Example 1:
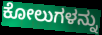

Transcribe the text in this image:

ಕೋಲುಗಳನ್ನು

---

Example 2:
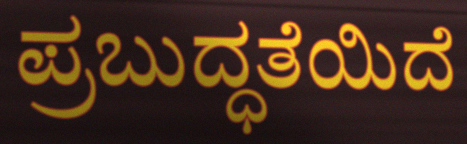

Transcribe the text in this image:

ಪ್ರಬುದ್ಧತೆಯಿದೆ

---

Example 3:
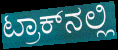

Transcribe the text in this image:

ಟ್ರಾಕ್‌ನಲ್ಲಿ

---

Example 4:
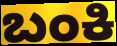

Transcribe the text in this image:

ಬಂಕಿ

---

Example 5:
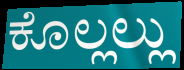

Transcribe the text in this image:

ಕೊಲ್ಲಲ್ಲು